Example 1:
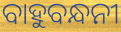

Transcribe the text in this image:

ବାହୁବନ୍ଧନୀ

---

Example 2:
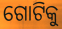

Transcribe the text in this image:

ଗୋଟିକୁ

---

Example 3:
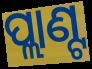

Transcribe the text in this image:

ପ୍ଲାଣ୍ଟ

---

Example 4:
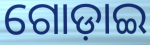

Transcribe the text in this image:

ଗୋଡ଼ାଇ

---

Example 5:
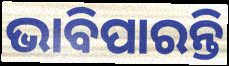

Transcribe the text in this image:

ଭାବିପାରନ୍ତି